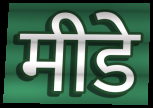
मीडे